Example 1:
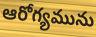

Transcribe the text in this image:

ఆరోగ్యమును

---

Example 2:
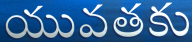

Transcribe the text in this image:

యువతకు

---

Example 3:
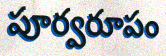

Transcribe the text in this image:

పూర్వరూపం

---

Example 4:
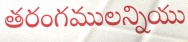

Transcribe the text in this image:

తరంగములన్నియు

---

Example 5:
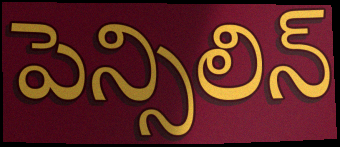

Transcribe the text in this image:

పెన్సిలిన్